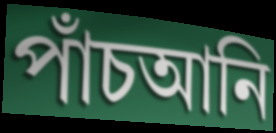
পাঁচআনি